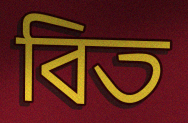
বিত